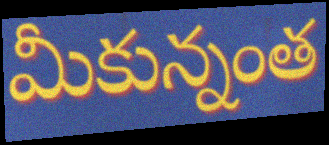
మీకున్నంత